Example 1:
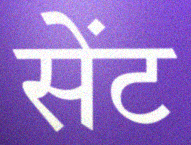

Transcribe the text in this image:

सेंट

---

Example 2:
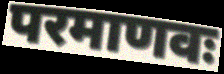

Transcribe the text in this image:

परमाणवः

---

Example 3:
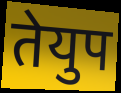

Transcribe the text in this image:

तेयुप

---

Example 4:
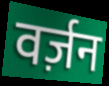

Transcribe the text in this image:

वर्ज़न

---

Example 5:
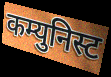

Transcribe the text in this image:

कम्युनिस्ट